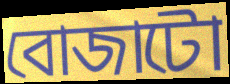
বোজাটো